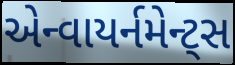
એન્વાયર્નમેન્ટ્સ